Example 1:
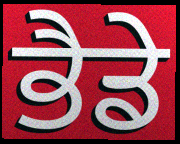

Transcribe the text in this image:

ਭੈਡੇ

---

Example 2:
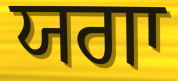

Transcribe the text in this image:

ਯਗਾ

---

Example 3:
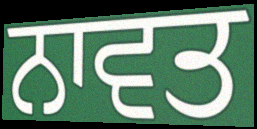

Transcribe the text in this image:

ਨਾਵਤ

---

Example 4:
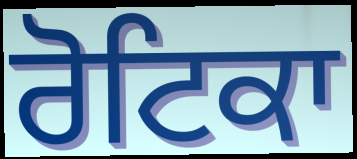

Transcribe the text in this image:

ਰੋਟਿਕਾ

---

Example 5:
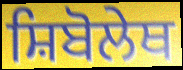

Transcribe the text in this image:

ਸ਼ਿਬੋਲੇਥ